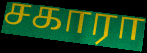
சகாரா